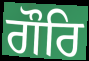
ਗੌਰਿ